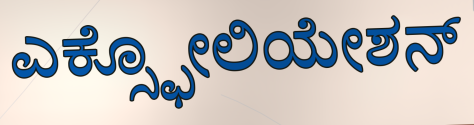
ಎಕ್ಸ್ಫೋಲಿಯೇಶನ್